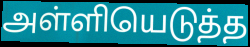
அள்ளியெடுத்த